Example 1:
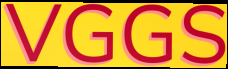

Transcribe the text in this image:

VGGS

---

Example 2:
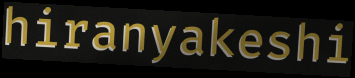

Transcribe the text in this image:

hiranyakeshi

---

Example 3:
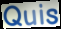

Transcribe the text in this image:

Quis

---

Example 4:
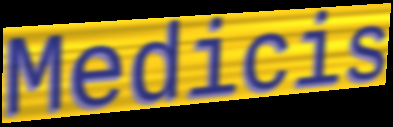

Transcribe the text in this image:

Medicis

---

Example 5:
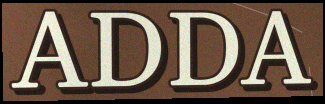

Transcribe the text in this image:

ADDA